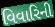
વિવારિની